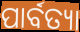
ପାର୍ବତ୍ୟା